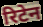
रिटेन